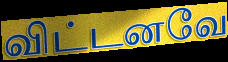
விட்டனவே